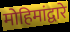
मोहिमांद्वारे